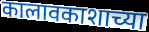
कालावकाशाच्या